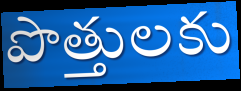
పొత్తులకు